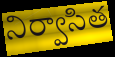
నిర్వాసిత